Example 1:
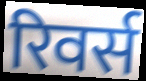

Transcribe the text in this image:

रिवर्स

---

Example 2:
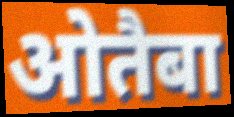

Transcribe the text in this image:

ओतैबा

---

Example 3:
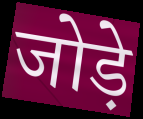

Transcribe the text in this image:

जोड़े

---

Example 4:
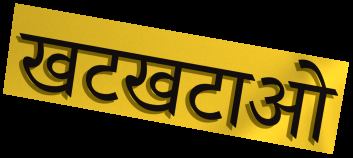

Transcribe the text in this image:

खटखटाओ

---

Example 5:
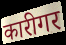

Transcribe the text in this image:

कारीगर